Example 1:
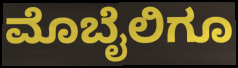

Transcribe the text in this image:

ಮೊಬೈಲಿಗೂ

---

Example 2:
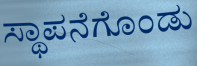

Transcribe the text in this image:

ಸ್ಥಾಪನೆಗೊಂಡು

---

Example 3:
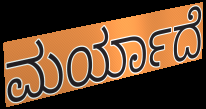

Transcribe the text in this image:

ಮರ್ಯಾದೆ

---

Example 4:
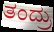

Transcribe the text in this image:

ತಂದ್ರು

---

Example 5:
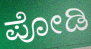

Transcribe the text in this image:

ಪೋಡಿ